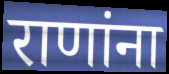
राणांना